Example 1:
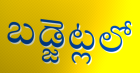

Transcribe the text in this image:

బడ్జెట్లలో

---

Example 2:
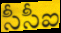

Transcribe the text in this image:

సీసీఐ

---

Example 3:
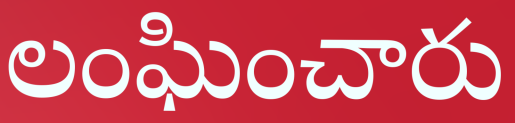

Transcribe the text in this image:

లంఘించారు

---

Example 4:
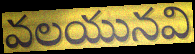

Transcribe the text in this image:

వలయునవి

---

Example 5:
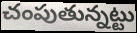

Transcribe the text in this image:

చంపుతున్నట్టు